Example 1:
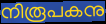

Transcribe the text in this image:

നിരൂപകനു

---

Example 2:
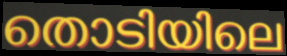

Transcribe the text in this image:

തൊടിയിലെ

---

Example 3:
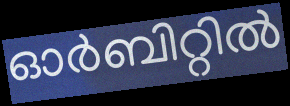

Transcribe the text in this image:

ഓർബിറ്റിൽ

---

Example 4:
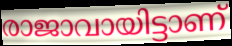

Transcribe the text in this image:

രാജാവായിട്ടാണ്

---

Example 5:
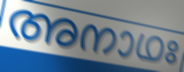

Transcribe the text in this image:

അനാഥഃ